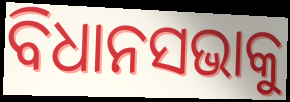
ବିଧାନସଭାକୁ